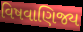
વિષવાણિજ્ય